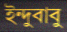
ইন্দুবাবু